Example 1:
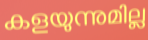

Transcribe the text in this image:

കളയുന്നുമില്ല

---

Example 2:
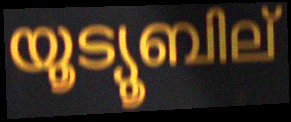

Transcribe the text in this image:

യൂട്യൂബില്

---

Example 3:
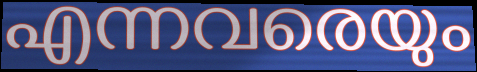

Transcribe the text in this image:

എന്നവരെയും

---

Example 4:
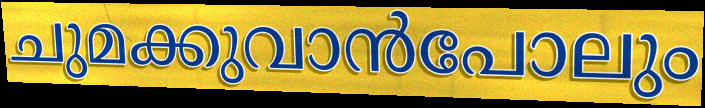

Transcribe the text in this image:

ചുമക്കുവാൻപോലും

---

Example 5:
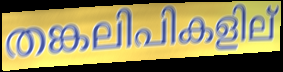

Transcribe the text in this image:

തങ്കലിപികളില്